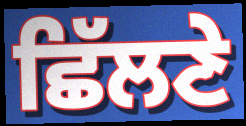
ਛਿੱਲਣੇ